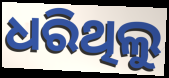
ଧରିଥିଲୁ